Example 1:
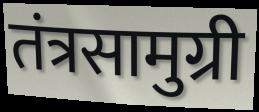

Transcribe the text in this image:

तंत्रसामुग्री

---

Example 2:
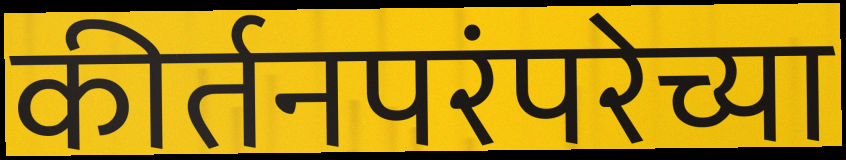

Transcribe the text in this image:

कीर्तनपरंपरेच्या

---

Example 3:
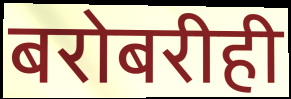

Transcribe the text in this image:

बरोबरीही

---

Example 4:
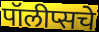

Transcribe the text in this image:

पॉलीप्सचे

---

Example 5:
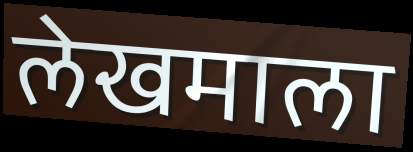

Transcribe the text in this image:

लेखमाला